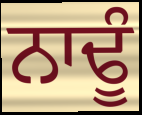
ਨਾਢੂੰ